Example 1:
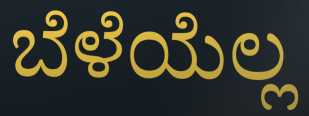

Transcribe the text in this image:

ಬೆಳೆಯೆಲ್ಲ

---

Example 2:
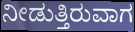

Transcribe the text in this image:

ನೀಡುತ್ತಿರುವಾಗ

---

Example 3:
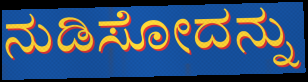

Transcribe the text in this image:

ನುಡಿಸೋದನ್ನು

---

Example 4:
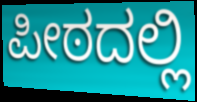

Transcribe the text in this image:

ಪೀಠದಲ್ಲಿ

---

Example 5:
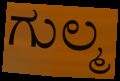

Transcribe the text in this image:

ಗುಲ್ಮ